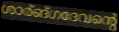
ശാര്ങ്ഗദേവന്റെ